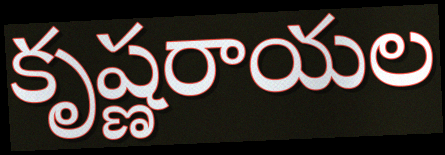
కృష్ణరాయల